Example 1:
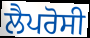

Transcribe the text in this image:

ਲੈਪਰੋਸੀ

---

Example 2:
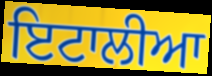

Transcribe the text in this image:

ਇਟਾਲੀਆ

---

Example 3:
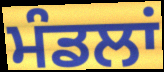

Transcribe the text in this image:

ਮੰਡਲਾਂ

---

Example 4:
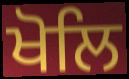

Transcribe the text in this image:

ਖੋਲਿ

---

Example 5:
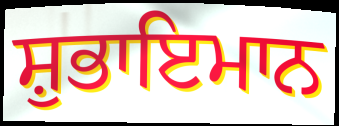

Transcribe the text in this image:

ਸ਼ੁਭਾਇਮਾਨ